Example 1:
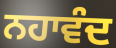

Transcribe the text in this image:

ਨਹਾਵੰਦ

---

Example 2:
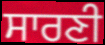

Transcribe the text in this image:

ਸਾਰਣੀ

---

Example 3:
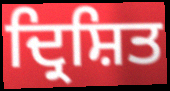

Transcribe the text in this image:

ਦ੍ਰਿਸ਼ਿਤ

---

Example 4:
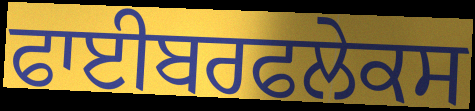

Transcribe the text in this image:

ਫਾਈਬਰਫਲੇਕਸ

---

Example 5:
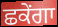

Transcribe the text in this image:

ਛਕੇਂਗਾ